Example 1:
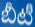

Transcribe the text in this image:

బీటీ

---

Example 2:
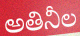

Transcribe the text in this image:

అతినీల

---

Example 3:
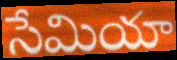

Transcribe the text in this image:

సేమియా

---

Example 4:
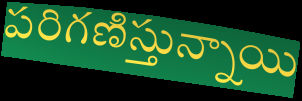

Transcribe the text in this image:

పరిగణిస్తున్నాయి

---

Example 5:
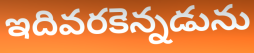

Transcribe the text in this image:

ఇదివరకెన్నడును